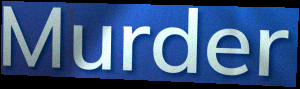
Murder